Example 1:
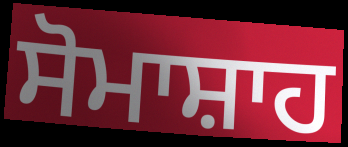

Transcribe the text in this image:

ਸੋਮਾਸ਼ਾਹ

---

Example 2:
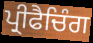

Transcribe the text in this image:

ਪ੍ਰੀਫੈਚਿੰਗ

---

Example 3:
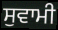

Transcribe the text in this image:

ਸੁਵਾਮੀ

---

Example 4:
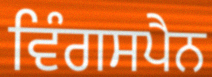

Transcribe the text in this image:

ਵਿੰਗਸਪੈਨ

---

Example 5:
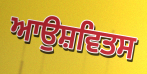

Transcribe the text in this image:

ਆਉਸ਼ਵਿਤਸ